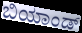
ಬಿಯಾಂಡ್